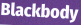
Blackbody